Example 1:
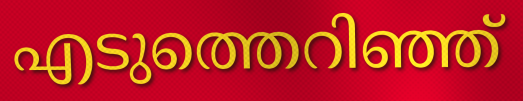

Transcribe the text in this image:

എടുത്തെറിഞ്ഞ്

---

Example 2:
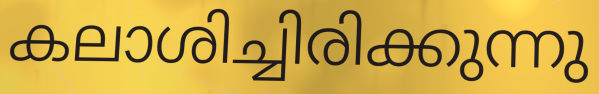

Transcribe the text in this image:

കലാശിച്ചിരിക്കുന്നു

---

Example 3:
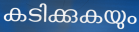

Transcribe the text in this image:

കടിക്കുകയും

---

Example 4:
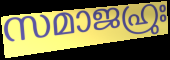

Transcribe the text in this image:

സമാജഹ്രുഃ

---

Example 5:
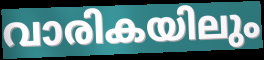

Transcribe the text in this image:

വാരികയിലും